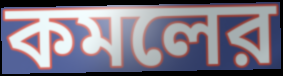
কমলের